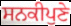
ਸਨਕੀਪੁਣੇ